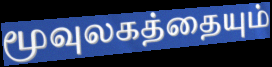
மூவுலகத்தையும்